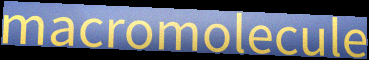
macromolecule